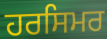
ਹਰਸਿਮਰ